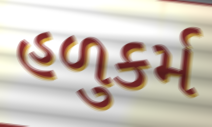
હળુકર્મ